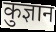
कुज्ञान